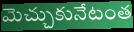
మెచ్చుకునేటంత